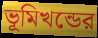
ভূমিখন্ডের